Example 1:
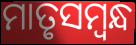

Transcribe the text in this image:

ମାତୃସମ୍ବନ୍ଧ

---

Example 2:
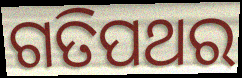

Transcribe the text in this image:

ଗତିପଥର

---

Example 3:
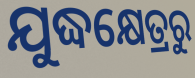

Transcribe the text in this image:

ଯୁଦ୍ଧକ୍ଷେତ୍ରରୁ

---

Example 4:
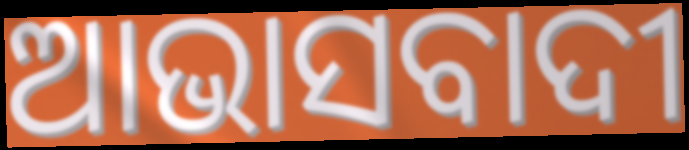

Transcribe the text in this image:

ଆଭାସବାଦୀ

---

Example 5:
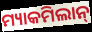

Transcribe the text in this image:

ମ୍ୟାକମିଲାନ୍